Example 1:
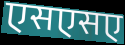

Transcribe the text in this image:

एसएसए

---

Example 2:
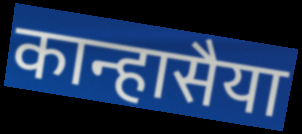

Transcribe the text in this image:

कान्हासैया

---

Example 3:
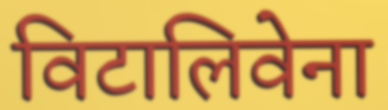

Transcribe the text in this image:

विटालिवेना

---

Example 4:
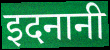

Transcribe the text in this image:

इदनानी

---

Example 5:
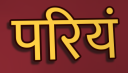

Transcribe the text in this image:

परियं